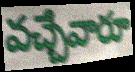
వచ్చేవారూ